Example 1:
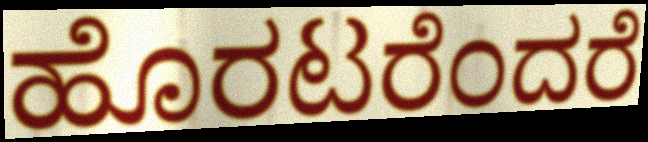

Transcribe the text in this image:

ಹೊರಟರೆಂದರೆ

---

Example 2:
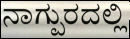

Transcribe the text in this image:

ನಾಗ್ಪುರದಲ್ಲಿ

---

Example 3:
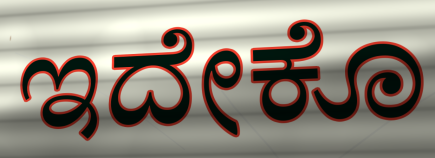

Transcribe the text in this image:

ಇದೇಕೊ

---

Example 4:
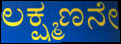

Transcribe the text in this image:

ಲಕ್ಷ್ಮಣನೇ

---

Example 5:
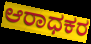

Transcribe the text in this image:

ಆರಾಧಕರ